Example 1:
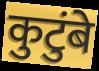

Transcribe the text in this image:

कुटुंबे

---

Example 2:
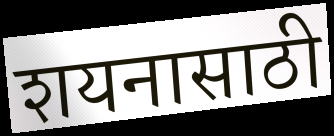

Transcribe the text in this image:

शयनासाठी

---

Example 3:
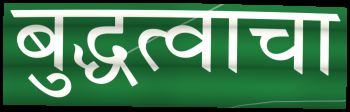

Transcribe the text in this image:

बुद्धत्वाचा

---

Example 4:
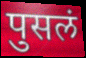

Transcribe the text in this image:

पुसलं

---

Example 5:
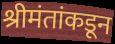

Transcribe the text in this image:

श्रीमंतांकडून